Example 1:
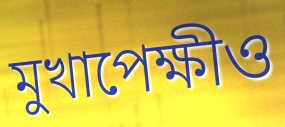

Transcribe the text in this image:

মুখাপেক্ষীও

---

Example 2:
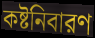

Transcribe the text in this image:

কষ্টনিবারণ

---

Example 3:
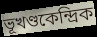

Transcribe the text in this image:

ভূখণ্ডকেন্দ্রিক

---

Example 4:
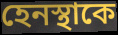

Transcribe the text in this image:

হেনস্থাকে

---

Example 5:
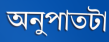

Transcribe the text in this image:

অনুপাতটা